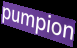
pumpion